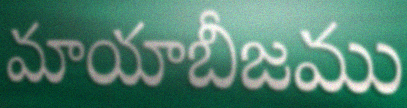
మాయాబీజము